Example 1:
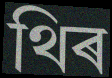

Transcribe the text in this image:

থিৰ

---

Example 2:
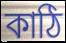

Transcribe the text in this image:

কাঠি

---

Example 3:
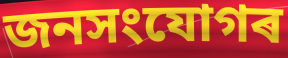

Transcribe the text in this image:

জনসংযোগৰ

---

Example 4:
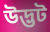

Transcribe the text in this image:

উদ্ভট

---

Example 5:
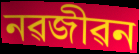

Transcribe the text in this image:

নৱজীৱন